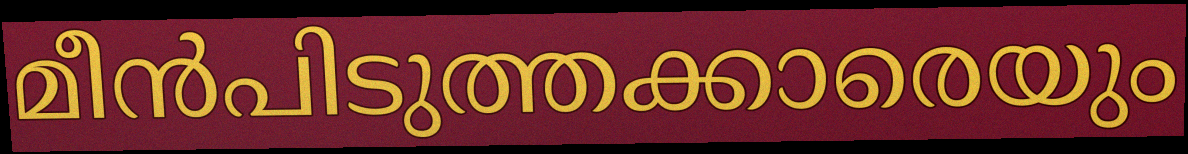
മീൻപിടുത്തക്കാരെയും